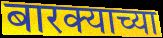
बारक्याच्या